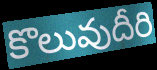
కొలువుదీరి